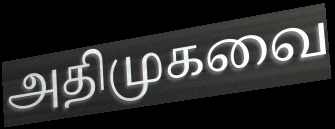
அதிமுகவை